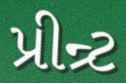
પ્રીન્ર્ટ